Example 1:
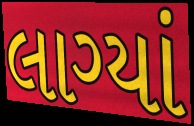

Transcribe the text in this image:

લાગ્યાં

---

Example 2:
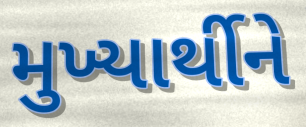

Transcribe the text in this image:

મુખ્યાર્થીને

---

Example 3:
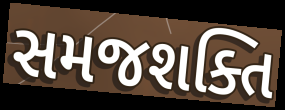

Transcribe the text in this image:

સમજશક્તિ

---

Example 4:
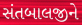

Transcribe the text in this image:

સંતબાલજીને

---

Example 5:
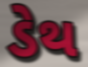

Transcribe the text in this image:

ડેથ